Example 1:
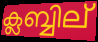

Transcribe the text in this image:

ക്ലബ്ബില്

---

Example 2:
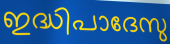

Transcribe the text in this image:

ഇദ്ധിപാദേസു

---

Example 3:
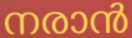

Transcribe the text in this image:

നരാൻ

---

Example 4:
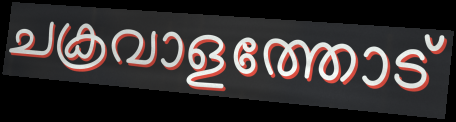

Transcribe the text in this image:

ചക്രവാളത്തോട്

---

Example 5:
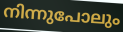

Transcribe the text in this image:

നിന്നുപോലും